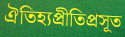
ঐতিহ্যপ্রীতিপ্রসূত